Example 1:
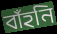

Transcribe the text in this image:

বাঁহনি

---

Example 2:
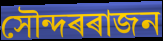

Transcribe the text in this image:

সৌন্দৰৰাজন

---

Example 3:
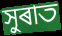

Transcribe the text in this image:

সুৰাত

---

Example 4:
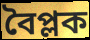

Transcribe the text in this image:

বৈপ্লক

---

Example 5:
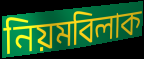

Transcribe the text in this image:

নিয়মবিলাক